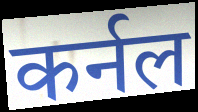
कर्नल